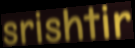
srishtir